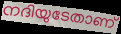
നദിയുടേതാണ്